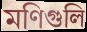
মণিগুলি